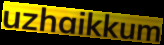
uzhaikkum